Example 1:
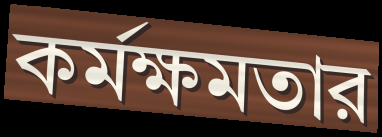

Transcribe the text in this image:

কর্মক্ষমতার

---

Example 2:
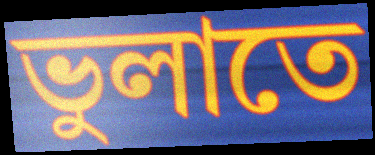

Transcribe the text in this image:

ভুলাতে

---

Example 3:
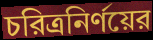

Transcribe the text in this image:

চরিত্রনির্ণয়ের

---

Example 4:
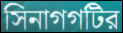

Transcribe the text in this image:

সিনাগগটির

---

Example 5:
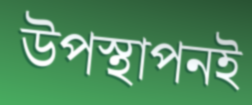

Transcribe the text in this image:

উপস্থাপনই